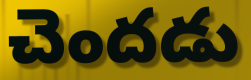
చెందడు